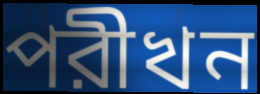
পরীখন